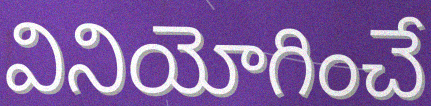
వినియోగించే